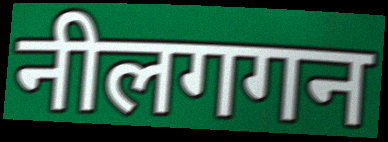
नीलगगन